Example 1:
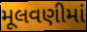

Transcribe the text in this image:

મૂલવણીમાં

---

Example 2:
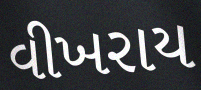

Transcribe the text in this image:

વીખરાય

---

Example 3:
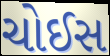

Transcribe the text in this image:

ચોઈસ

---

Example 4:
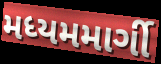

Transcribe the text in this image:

મધ્યમમાર્ગી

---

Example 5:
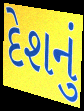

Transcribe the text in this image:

દેશનું